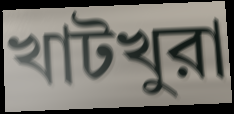
খাটখুরা